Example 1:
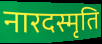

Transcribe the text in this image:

नारदस्मृति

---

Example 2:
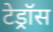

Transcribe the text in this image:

टेड्रॉस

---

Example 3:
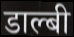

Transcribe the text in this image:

डाल्बी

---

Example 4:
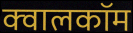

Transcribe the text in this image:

क्‍वालकॉम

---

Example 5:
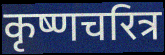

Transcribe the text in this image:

कृष्णचरित्र